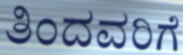
ತಿಂದವರಿಗೆ